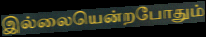
இல்லையென்றபோதும்